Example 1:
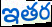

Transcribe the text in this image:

ఇతర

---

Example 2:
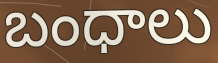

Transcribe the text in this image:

బంధాలు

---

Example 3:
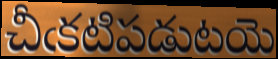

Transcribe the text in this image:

చీఁకటిపడుటయె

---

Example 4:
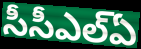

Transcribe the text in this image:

సీసీఎల్ఏ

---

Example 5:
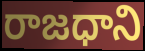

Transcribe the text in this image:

రాజధాని